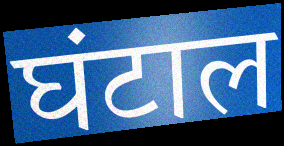
घंटाल